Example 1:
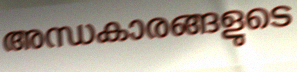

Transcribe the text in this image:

അന്ധകാരങ്ങളുടെ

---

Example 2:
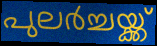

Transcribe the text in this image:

പുലർച്ചയ്ക്ക്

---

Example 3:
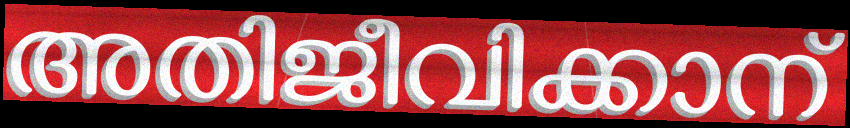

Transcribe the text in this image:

അതിജീവിക്കാന്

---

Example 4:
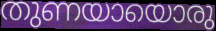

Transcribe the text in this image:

തുണയായൊരു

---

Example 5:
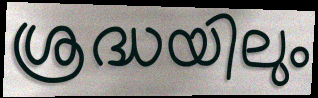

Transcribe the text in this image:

ശ്രദ്ധയിലും